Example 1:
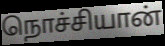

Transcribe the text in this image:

நொச்சியான்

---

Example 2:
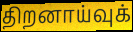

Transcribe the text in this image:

திறனாய்வுக்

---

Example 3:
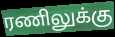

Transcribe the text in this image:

ரணிலுக்கு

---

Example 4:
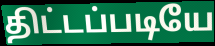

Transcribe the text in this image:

திட்டப்படியே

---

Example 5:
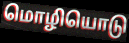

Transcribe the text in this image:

மொழியொடு